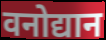
वनोद्यान